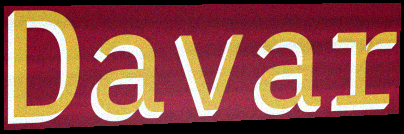
Davar